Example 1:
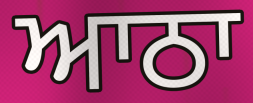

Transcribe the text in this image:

ਆਠਾ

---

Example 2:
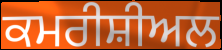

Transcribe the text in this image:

ਕਮਰੀਸ਼ੀਅਲ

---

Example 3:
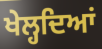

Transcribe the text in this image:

ਖੇਲ੍ਹਦਿਆਂ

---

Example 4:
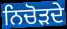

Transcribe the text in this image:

ਨਿਚੋੜਦੇ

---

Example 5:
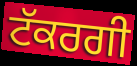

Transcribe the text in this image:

ਟੱਕਰਗੀ